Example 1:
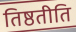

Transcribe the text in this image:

तिष्ठतीति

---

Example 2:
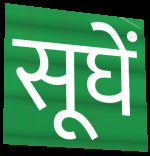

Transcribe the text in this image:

सूघें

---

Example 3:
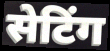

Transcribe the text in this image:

सेटिंग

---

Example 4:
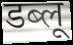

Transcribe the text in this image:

डब्लू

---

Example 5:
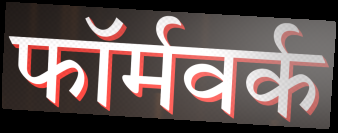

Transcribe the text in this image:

फॉर्मवर्क